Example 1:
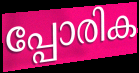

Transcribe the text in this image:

പ്പോരിക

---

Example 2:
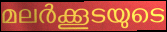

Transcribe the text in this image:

മലർക്കൂടയുടെ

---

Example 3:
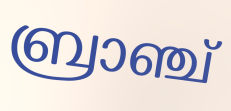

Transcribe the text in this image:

ബ്രാഞ്ച്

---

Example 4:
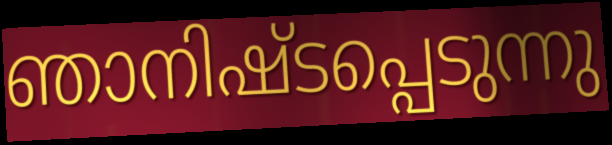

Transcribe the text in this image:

ഞാനിഷ്ടപ്പെടുന്നു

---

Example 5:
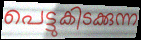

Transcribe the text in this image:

പെട്ടുകിടക്കുന്ന